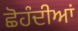
ਛੋਹੰਦੀਆਂ